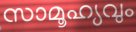
സാമൂഹ്യവും